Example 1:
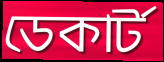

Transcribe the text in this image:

ডেকাৰ্ট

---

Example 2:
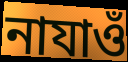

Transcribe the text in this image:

নাযাওঁ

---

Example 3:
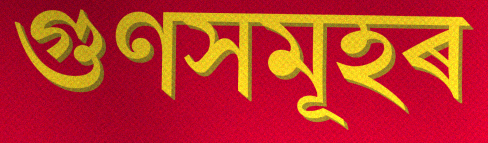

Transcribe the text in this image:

গুণসমূহৰ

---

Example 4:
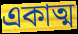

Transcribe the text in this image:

একাত্ম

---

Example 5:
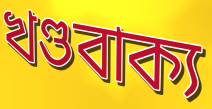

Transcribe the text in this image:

খণ্ডবাক্য